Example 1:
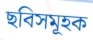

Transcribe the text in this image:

ছবিসমূহক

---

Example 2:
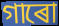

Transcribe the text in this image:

গাৰো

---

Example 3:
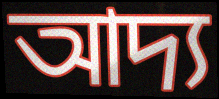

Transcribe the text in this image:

আদ্য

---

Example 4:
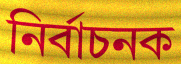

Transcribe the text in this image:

নিৰ্বাচনক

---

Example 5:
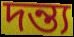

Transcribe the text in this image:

দন্ত্য